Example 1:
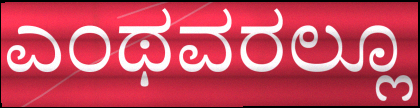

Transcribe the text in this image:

ಎಂಥವರಲ್ಲೂ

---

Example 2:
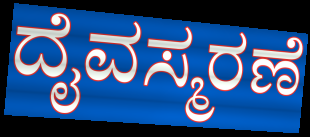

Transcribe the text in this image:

ದೈವಸ್ಮರಣೆ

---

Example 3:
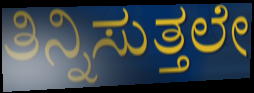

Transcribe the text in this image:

ತಿನ್ನಿಸುತ್ತಲೇ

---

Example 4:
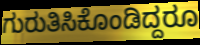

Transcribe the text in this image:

ಗುರುತಿಸಿಕೊಂಡಿದ್ದರೂ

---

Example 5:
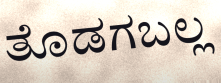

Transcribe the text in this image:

ತೊಡಗಬಲ್ಲ